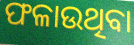
ଫଳାଉଥିବା